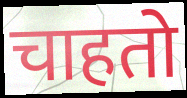
चाहतो